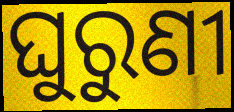
ଘୁରୁଣୀ